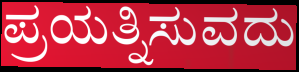
ಪ್ರಯತ್ನಿಸುವದು